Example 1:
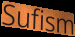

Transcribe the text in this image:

Sufism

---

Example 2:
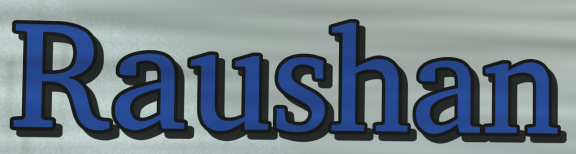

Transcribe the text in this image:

Raushan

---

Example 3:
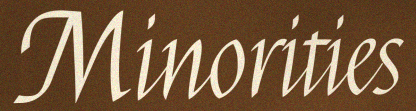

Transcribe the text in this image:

Minorities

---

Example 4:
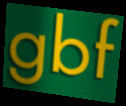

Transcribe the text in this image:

gbf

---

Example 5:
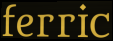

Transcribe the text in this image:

ferric